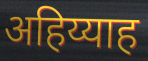
अहिय्याह